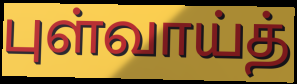
புள்வாய்த்